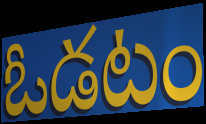
ఓడటం